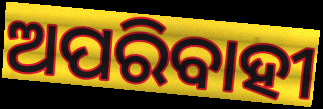
ଅପରିବାହୀ